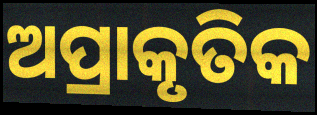
ଅପ୍ରାକୃତିକ